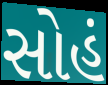
સોહં